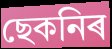
ছেকনিৰ